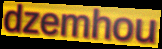
dzemhou